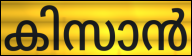
കിസാൻ